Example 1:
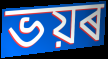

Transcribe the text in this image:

ভয়ৰ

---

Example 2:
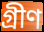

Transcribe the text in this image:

গ্ৰীণ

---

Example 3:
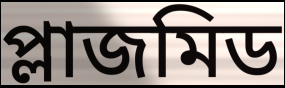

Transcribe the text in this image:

প্লাজমিড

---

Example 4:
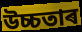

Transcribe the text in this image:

উচ্চতাৰ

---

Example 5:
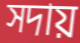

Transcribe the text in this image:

সদায়